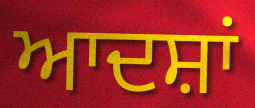
ਆਦਸ਼ਾਂ